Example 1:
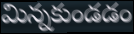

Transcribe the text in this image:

మిన్నకుండడం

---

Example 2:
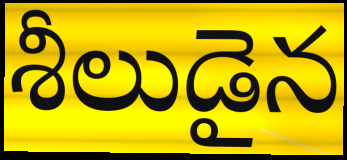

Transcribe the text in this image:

శీలుడైన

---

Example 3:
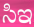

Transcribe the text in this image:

సిఇ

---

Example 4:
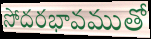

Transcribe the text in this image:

సోదరభావముతో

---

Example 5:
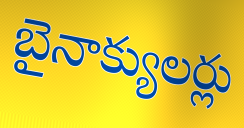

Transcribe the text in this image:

బైనాక్యులర్లు